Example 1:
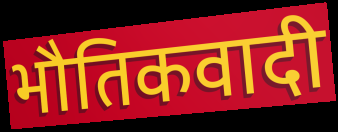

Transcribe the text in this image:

भौतिकवादी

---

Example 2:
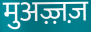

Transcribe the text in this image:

मुअज़्ज़ज़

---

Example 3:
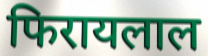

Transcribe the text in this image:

फिरायलाल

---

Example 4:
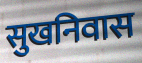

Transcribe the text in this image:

सुखनिवास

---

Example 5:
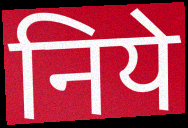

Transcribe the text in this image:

निये